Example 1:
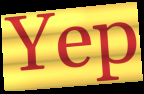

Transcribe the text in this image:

Yep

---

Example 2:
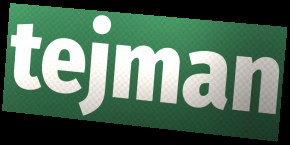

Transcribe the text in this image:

tejman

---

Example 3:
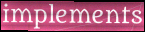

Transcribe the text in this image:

implements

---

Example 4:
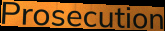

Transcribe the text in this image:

Prosecution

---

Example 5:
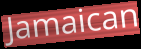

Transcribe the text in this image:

Jamaican